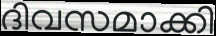
ദിവസമാക്കി